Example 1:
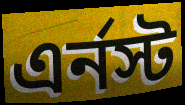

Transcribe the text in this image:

এর্নস্ট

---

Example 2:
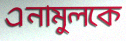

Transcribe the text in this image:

এনামুলকে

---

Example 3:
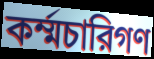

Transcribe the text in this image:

কর্ম্মচারিগণ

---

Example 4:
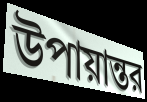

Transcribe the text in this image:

উপায়ান্তর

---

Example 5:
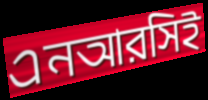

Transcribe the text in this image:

এনআরসিই